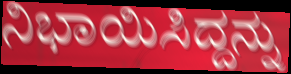
ನಿಭಾಯಿಸಿದ್ದನ್ನು